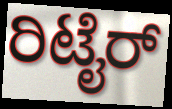
ರಿಟೈರ್